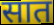
सात